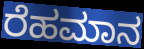
ರೆಹಮಾನ